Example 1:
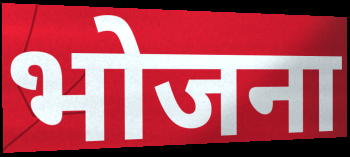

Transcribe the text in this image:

भोजना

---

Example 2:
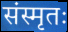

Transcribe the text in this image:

संस्मृतः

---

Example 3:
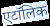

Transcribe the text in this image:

एटॉलिक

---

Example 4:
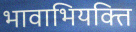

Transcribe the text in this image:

भावाभियक्ति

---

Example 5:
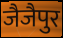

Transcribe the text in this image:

जैजैपुर